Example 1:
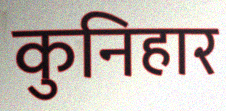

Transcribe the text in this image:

कुनिहार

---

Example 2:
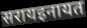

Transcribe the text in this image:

सरायइनायत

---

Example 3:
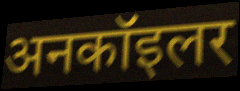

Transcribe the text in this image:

अनकॉइलर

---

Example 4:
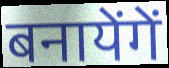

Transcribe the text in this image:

बनायेंगें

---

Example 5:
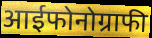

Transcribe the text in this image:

आईफोनोग्राफी